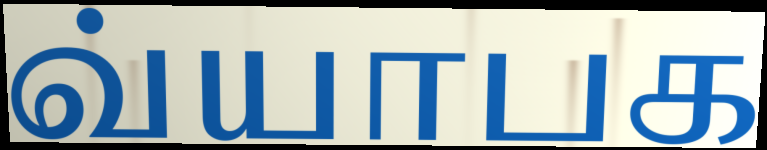
வ்யாபக